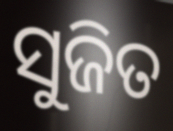
ସୁଜିତ